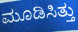
ಮೂಡಿಸಿತ್ತು